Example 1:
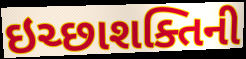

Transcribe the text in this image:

ઇચ્છાશક્તિની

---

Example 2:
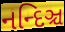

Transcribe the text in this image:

નન્દિઞ્ચ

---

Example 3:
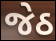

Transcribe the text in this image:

જેઠ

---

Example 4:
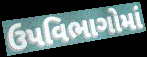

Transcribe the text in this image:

ઉપવિભાગોમાં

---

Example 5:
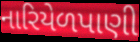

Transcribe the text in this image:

નારિયેળપાણી